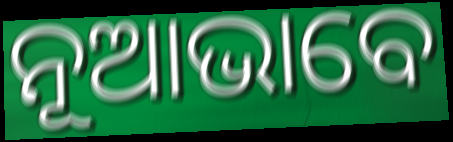
ନୂଆଭାବେ